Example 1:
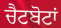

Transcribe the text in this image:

ਚੈਟਬੋਟਾਂ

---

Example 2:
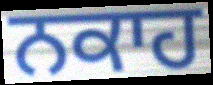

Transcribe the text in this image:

ਨਕਾਹ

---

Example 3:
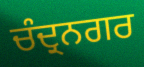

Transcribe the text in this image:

ਚੰਦ੍ਰਨਗਰ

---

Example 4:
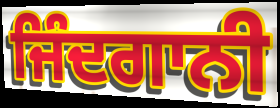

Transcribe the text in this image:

ਜਿੰਦਗਾਨੀ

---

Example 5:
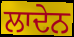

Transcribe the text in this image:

ਲਾਦੇਨ